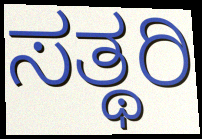
ಸತ್ಥರಿ